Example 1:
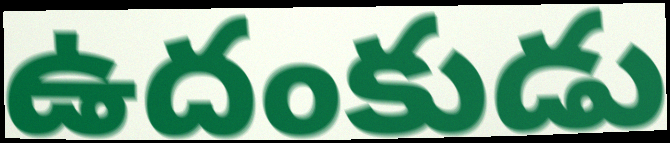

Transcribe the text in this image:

ఉదంకుడు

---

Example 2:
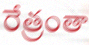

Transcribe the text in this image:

రేత్రంతా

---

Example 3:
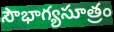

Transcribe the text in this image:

సౌభాగ్యసూత్రం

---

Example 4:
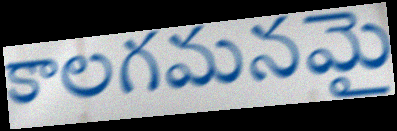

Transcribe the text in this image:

కాలగమనమై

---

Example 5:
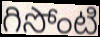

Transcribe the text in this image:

గిసోంటి